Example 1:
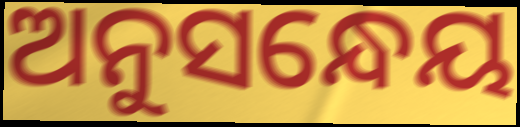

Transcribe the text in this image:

ଅନୁସନ୍ଧେୟ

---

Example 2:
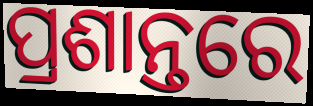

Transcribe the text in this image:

ପ୍ରଶାନ୍ତରେ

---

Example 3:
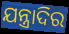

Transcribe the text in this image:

ଯନ୍ତ୍ରାଦିର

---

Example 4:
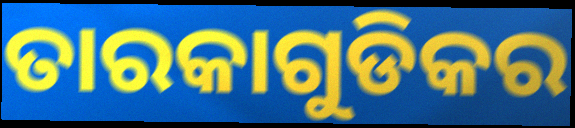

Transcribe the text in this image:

ତାରକାଗୁଡିକର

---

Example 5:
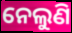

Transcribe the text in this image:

ନେଲୁଣି